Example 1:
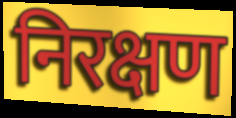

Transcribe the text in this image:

निरक्षण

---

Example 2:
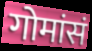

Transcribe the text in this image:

गोमांसं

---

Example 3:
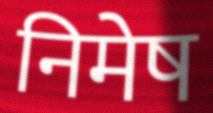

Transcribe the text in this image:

निमेष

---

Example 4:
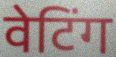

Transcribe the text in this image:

वेटिंग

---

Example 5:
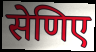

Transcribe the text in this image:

सेणिए